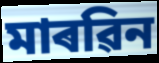
মাৰৱিন